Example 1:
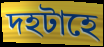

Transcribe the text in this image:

দহটাহে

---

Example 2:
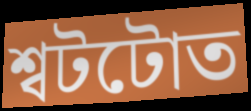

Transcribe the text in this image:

শ্বটটোত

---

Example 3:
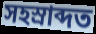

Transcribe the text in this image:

সহস্ৰাব্দত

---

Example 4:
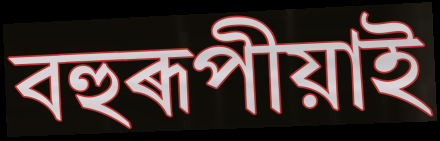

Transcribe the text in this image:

বহুৰূপীয়াই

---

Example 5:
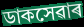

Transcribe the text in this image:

ডাকসেৱাৰ